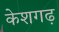
केशगढ़